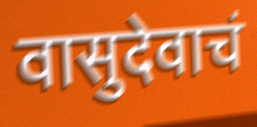
वासुदेवाचं